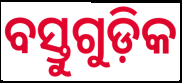
ବସ୍ତୁଗୁଡ଼ିକ